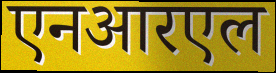
एनआरएल